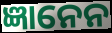
ଜ୍ଞାନେନ